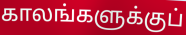
காலங்களுக்குப்